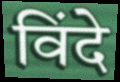
विंदे